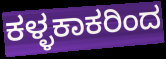
ಕಳ್ಳಕಾಕರಿಂದ